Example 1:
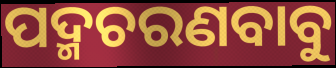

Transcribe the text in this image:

ପଦ୍ମଚରଣବାବୁ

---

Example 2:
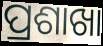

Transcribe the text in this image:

ପ୍ରଶାଖା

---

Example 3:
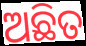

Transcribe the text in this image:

ଅଛିତ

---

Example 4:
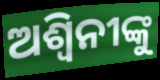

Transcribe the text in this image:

ଅଶ୍ୱିନୀଙ୍କୁ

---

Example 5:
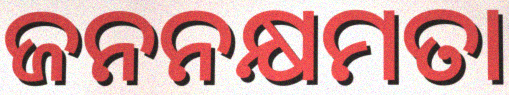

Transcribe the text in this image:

ଜନନକ୍ଷମତା